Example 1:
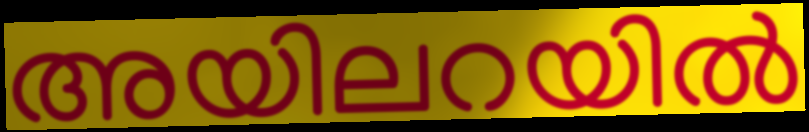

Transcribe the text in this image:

അയിലറയിൽ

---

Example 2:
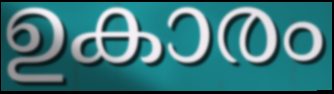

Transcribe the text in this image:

ഉകാരം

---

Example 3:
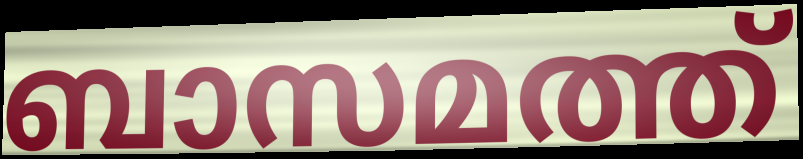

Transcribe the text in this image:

ബാസമത്ത്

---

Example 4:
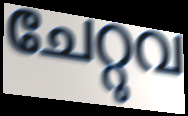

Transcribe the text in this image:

ചേറ്റുവ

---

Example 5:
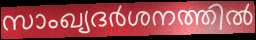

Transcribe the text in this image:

സാംഖ്യദർശനത്തിൽ